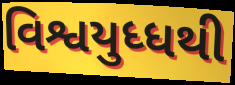
વિશ્વયુધ્ધથી